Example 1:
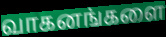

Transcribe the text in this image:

வாகனங்களை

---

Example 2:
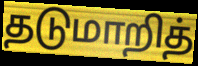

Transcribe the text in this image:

தடுமாறித்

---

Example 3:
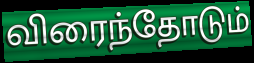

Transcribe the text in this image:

விரைந்தோடும்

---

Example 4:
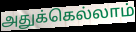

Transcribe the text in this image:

அதுக்கெல்லாம்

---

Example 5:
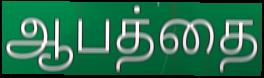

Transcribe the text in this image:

ஆபத்தை